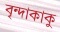
বৃন্দাকাকু